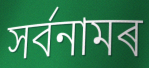
সৰ্বনামৰ